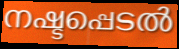
നഷ്ടപ്പെടൽ